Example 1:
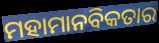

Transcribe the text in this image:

ମହାମାନବିକତାର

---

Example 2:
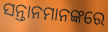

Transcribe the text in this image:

ସନ୍ତାନମାନଙ୍କରେ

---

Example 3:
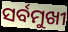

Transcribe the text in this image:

ସର୍ବମୁଖୀ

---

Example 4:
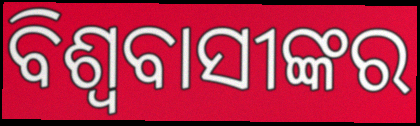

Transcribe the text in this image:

ବିଶ୍ୱବାସୀଙ୍କର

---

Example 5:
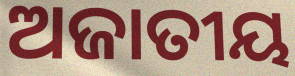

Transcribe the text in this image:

ଅଜାତୀୟ